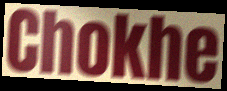
Chokhe